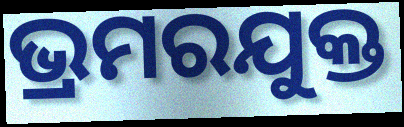
ଭ୍ରମରଯୁକ୍ତ